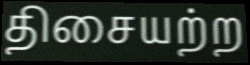
திசையற்ற